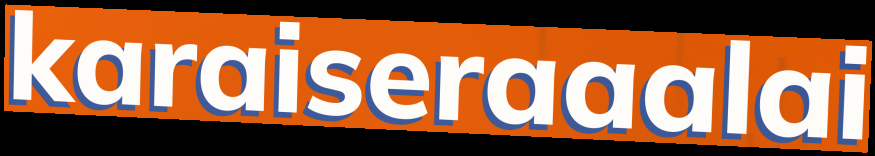
karaiseraaalai